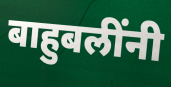
बाहुबलींनी